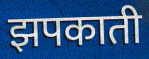
झपकाती